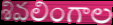
శివలింగాల